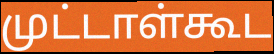
முட்டாள்கூட